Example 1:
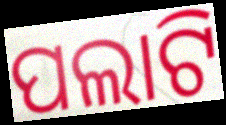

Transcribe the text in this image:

ପଲାଟି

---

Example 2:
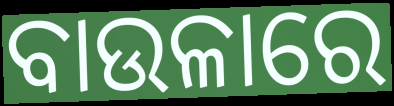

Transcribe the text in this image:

ବାଉଳାରେ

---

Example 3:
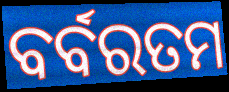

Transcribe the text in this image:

ବର୍ବରତମ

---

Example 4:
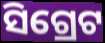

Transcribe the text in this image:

ସିଗ୍ରେଟ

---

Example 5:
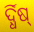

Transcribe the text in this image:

ର୍ଦ୍ଧିଷ୍